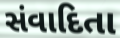
સંવાદિતા